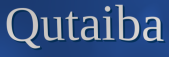
Qutaiba